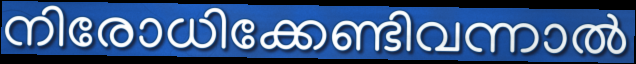
നിരോധിക്കേണ്ടിവന്നാൽ